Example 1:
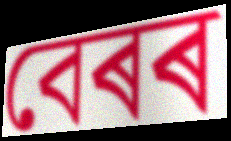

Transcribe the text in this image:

বেৰৰ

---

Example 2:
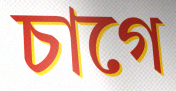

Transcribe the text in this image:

চাগে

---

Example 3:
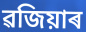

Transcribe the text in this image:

ৱজিয়াৰ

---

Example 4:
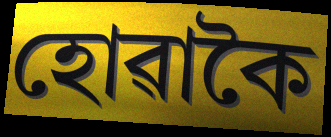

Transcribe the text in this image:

হোৱাকৈ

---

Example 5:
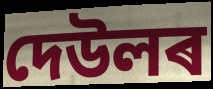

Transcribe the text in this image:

দেউলৰ